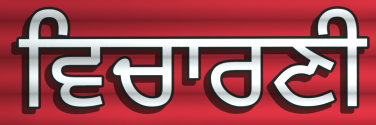
ਵਿਚਾਰਣੀ